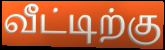
வீட்டிற்கு